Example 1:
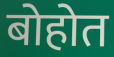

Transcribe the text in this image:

बोहोत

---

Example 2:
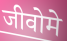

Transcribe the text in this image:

जीवोमे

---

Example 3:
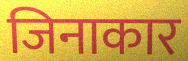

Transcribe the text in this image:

जिनाकार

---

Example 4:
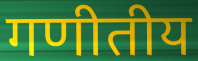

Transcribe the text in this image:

गणीतीय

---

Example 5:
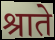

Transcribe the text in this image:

श्राते